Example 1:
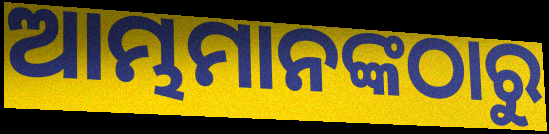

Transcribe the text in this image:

ଆମ୍ଭମାନଙ୍କଠାରୁ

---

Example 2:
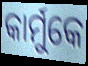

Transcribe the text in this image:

କାର୍ମୁକେ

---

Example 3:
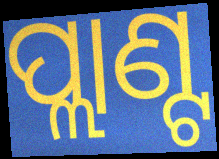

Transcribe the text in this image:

ପ୍ଲାଣ୍ଟ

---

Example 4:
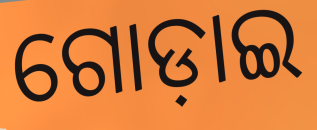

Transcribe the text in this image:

ଗୋଡ଼ାଇ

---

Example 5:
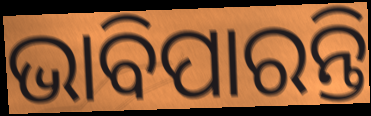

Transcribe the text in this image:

ଭାବିପାରନ୍ତି